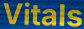
Vitals